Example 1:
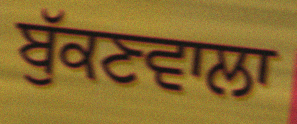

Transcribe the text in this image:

ਬੁੱਕਣਵਾਲਾ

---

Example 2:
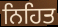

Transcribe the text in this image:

ਨਿਹਿਤ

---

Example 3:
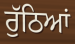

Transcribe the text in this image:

ਰੁੱਠਿਆਂ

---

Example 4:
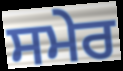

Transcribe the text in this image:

ਸਮੇਰ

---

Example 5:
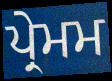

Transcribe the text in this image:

ਪ੍ਰੇਮਮ